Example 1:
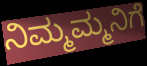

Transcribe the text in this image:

ನಿಮ್ಮಮ್ಮನಿಗೆ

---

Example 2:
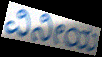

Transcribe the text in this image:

ವಿನೀಯ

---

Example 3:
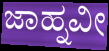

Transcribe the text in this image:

ಜಾಹ್ನವೀ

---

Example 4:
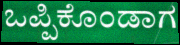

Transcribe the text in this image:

ಒಪ್ಪಿಕೊಂಡಾಗ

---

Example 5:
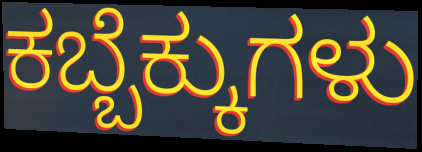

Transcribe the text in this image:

ಕಬ್ಬೆಕ್ಕುಗಳು